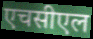
एचसीएल